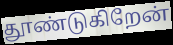
தூண்டுகிறேன்